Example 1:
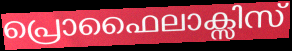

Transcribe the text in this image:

പ്രൊഫൈലാക്സിസ്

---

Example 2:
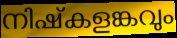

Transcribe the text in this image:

നിഷ്‌കളങ്കവും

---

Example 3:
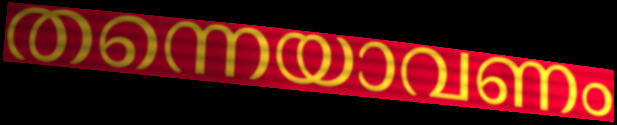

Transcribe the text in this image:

തന്നെയാവണം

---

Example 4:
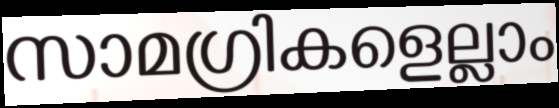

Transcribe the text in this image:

സാമഗ്രികളെല്ലാം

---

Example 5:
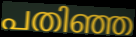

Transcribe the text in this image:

പതിഞ്ഞ